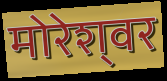
मोरेश्वर